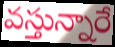
వస్తున్నారే